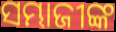
ସମ୍ଭାଜୀଙ୍କ